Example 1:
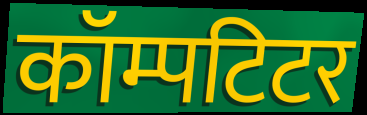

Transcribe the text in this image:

कॉम्पटिटर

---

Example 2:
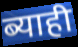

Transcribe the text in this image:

ब्याही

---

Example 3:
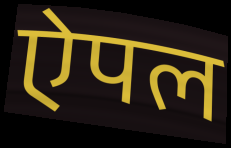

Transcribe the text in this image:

ऐपल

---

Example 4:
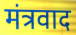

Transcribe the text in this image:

मंत्रवाद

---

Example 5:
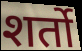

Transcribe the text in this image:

शर्तो